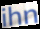
ihn